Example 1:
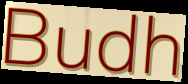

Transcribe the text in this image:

Budh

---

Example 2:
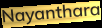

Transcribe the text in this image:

Nayanthara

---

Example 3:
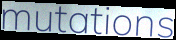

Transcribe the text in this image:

mutations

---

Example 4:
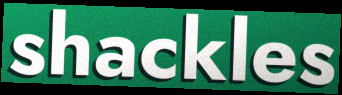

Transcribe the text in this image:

shackles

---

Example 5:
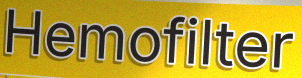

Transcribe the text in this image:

Hemofilter